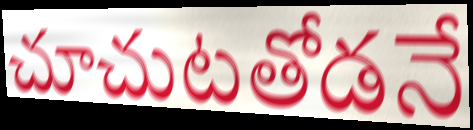
చూచుటతోడనే